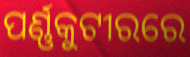
ପର୍ଣ୍ଣକୁଟୀରରେ